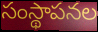
సంస్థాపనల